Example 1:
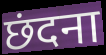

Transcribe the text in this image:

छंदना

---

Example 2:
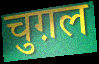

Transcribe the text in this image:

चुग़ल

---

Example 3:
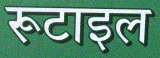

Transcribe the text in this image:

रूटाइल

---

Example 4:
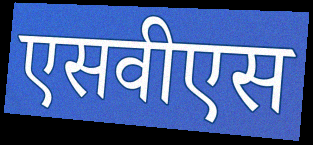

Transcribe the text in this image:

एसवीएस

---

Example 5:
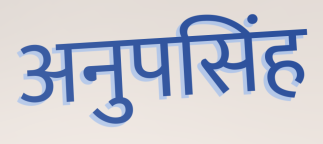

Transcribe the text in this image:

अनुपसिंह